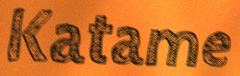
Katame